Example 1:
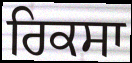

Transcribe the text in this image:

ਰਿਕਸਾ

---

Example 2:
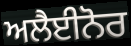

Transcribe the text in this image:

ਅਲੈਈਨੋਰ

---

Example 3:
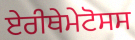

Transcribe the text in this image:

ਏਰੀਥੇਮੇਟੋਸਸ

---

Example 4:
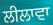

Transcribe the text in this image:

ਲੀਲਾਵਾ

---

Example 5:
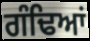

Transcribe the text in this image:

ਗੰਢਿਆਂ